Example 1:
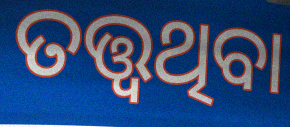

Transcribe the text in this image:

ତତ୍ତ୍ୱଥିବା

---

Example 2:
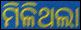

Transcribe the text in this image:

ମିଳିଥଲା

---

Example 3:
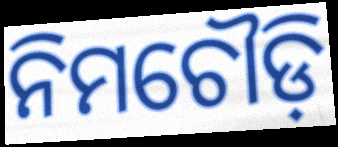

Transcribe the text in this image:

ନିମଚୌଡ଼ି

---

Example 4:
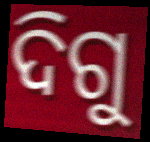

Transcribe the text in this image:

ଦିଗୁ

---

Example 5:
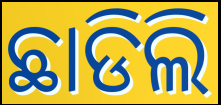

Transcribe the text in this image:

ଛାଡିଲି